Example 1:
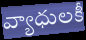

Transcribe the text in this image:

వ్యాధులకీ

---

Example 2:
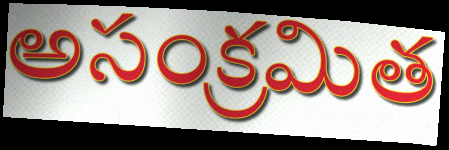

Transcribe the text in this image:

అసంక్రమిత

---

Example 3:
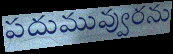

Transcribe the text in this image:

పదుమువ్వురను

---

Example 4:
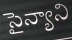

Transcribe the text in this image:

సైన్యాని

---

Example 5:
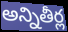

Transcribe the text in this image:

అన్నితీర్ల